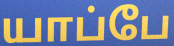
யாப்பே